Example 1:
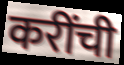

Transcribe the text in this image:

करींची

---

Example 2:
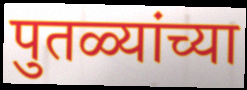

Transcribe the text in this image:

पुतळ्यांच्या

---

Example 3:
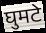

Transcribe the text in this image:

घुमटे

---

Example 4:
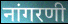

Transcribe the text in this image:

नांगरणी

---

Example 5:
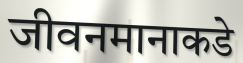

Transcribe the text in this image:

जीवनमानाकडे